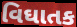
વિઘાતક